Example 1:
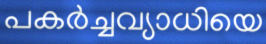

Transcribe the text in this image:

പകർച്ചവ്യാധിയെ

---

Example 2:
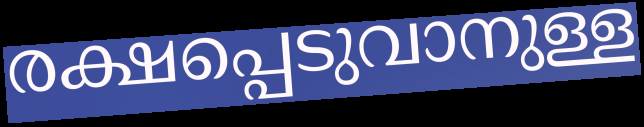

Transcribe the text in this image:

രക്ഷപ്പെടുവാനുള്ള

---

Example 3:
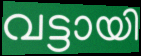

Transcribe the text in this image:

വട്ടായി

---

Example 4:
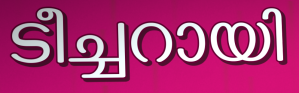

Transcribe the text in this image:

ടീച്ചറായി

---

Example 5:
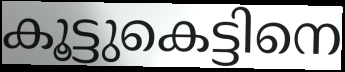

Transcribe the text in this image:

കൂട്ടുകെട്ടിനെ